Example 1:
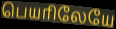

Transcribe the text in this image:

பெயரிலேயே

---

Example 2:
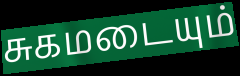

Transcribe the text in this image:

சுகமடையும்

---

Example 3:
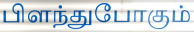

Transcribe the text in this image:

பிளந்துபோகும்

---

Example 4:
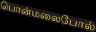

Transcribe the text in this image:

பொன்மலைபோல்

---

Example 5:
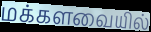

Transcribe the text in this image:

மக்களவையில்